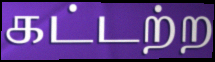
கட்டற்ற